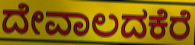
ದೇವಾಲದಕೆರೆ